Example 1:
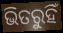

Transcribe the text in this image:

ଭିତରୁହିଁ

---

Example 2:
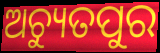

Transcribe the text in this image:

ଅଚ୍ୟୁତପୁର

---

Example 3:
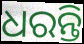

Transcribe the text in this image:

ଧରନ୍ତି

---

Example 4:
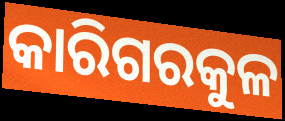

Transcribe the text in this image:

କାରିଗରକୁଳ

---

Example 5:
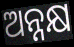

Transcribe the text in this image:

ଅନ୍ନକ୍ଷ